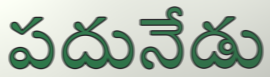
పదునేడు